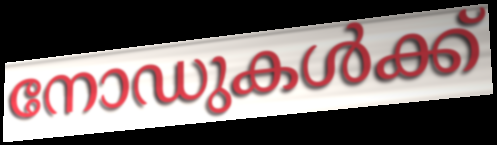
നോഡുകൾക്ക്